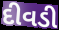
દીવડી